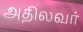
அதிலவர்